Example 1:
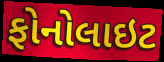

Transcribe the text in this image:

ફોનોલાઇટ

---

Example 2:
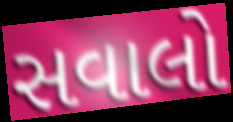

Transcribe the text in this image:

સવાલો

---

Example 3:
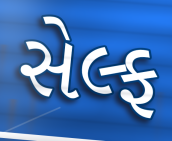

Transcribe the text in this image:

સેલ્ફ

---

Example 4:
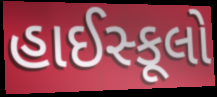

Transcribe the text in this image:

હાઈસ્કૂલો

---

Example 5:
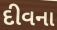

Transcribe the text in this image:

દીવના